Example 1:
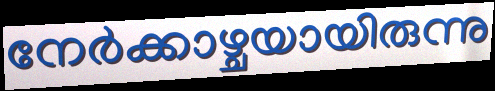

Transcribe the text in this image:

നേർക്കാഴ്ചയായിരുന്നു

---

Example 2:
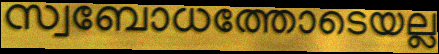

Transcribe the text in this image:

സ്വബോധത്തോടെയല്ല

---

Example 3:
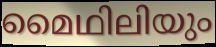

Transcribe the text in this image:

മൈഥിലിയും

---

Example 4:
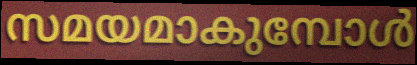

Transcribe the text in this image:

സമയമാകുമ്പോൾ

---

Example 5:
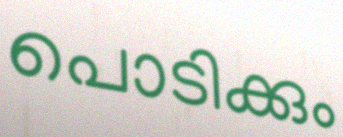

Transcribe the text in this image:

പൊടിക്കും